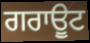
ਗਰਾਊਟ